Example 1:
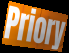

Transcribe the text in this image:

Priory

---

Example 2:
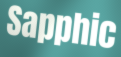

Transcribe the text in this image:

Sapphic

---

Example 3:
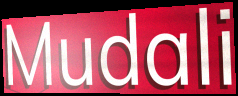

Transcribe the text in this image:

Mudali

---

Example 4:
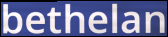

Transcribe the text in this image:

bethelan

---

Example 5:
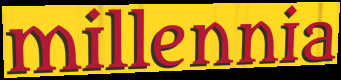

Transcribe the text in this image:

millennia